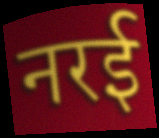
नरई